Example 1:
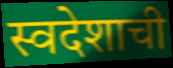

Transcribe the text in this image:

स्वदेशाची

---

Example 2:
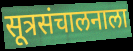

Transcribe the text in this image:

सूत्रसंचालनाला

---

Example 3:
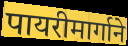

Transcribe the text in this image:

पायरीमार्गाने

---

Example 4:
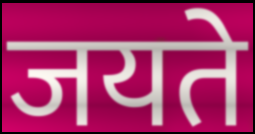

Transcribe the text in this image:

जयते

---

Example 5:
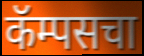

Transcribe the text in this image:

कॅम्पसचा